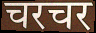
चरचर